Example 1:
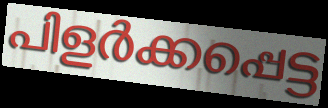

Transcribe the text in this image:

പിളർക്കപ്പെട്ട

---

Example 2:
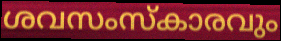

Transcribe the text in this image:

ശവസംസ്കാരവും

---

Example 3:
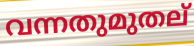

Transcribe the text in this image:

വന്നതുമുതല്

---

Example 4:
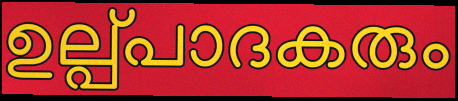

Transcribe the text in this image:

ഉല്പ്പാദകരും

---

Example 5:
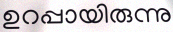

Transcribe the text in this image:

ഉറപ്പായിരുന്നു